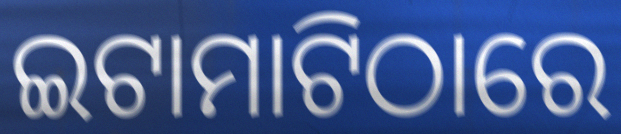
ଇଟାମାଟିଠାରେ